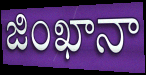
జింఖానా